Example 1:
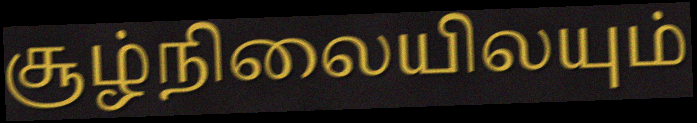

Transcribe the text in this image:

சூழ்நிலையிலயும்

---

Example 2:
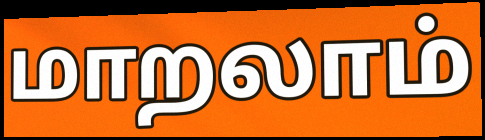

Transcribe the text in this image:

மாறலாம்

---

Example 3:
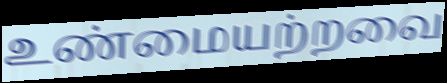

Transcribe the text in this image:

உண்மையற்றவை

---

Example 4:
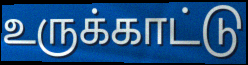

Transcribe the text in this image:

உருக்காட்டு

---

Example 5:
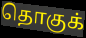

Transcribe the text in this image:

தொகுக்